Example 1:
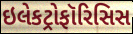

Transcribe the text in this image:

ઇલેકટ્રોફૉરિસિસ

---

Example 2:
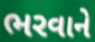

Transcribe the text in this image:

ભરવાને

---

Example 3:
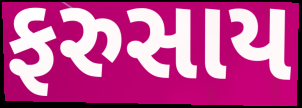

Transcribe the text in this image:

ફરુસાય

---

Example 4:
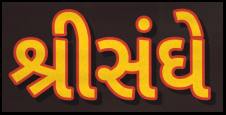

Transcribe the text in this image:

શ્રીસંઘે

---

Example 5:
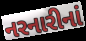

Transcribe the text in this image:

નરનારીનાં